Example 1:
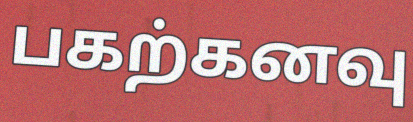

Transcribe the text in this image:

பகற்கனவு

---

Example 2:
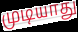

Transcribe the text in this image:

முடியாது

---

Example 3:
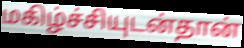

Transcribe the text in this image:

மகிழ்ச்சியுடன்தான்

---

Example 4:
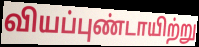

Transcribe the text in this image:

வியப்புண்டாயிற்று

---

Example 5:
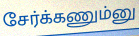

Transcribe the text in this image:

சேர்க்கணும்னு